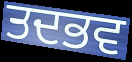
ਤਦਭਵ